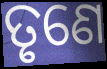
ତୃଣେ